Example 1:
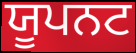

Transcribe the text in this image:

ਯੂਪਨਟ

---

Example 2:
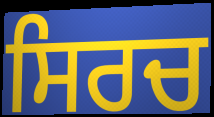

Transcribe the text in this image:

ਸਿਰਚ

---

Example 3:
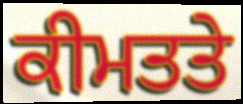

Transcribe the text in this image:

ਕੀਮਤਤੇ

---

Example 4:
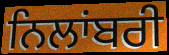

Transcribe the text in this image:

ਨਿਲਾਂਬਰੀ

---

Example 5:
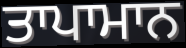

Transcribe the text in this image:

ਤਾਪਾਮਾਨ